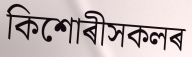
কিশোৰীসকলৰ